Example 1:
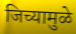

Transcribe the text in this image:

जिच्यामुळे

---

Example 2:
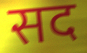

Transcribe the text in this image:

सद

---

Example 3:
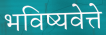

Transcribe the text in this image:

भविष्यवेत्ते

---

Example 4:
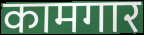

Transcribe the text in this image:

कामगार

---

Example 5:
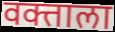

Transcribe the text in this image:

वक्ताला